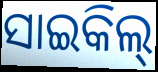
ସାଇକିଲ୍